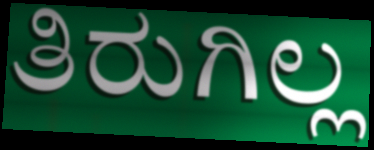
ತಿರುಗಿಲ್ಲ